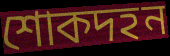
শোকদহন